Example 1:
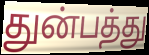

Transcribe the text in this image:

துன்பத்து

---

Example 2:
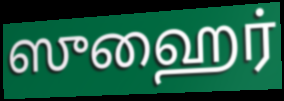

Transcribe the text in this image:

ஸுஹைர்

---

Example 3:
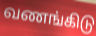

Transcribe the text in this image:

வணங்கிடு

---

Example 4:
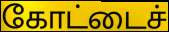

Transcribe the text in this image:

கோட்டைச்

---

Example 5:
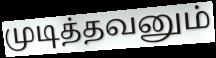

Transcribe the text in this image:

முடித்தவனும்